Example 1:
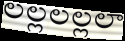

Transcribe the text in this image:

లల్లలల్లలా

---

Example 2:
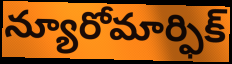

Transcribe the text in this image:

న్యూరోమార్ఫిక్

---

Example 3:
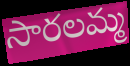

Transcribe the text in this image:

సారలమ్మ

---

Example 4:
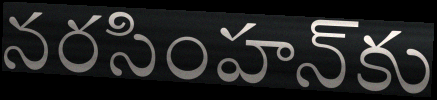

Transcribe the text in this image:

నరసింహన్‌కు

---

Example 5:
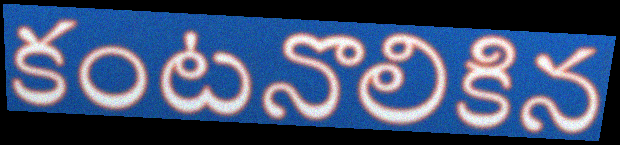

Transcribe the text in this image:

కంటనొలికిన